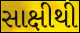
સાક્ષીથી